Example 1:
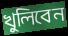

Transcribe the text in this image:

খুলিবেন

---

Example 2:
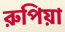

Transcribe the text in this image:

রুপিয়া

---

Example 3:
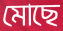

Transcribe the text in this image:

মোছে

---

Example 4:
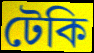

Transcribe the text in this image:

টেকি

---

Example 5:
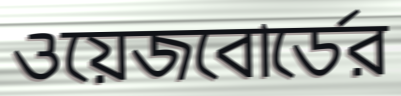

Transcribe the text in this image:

ওয়েজবোর্ডের